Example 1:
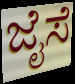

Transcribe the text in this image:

ಜೈಸೆ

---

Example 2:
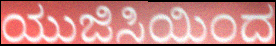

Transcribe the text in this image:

ಯುಜಿಸಿಯಿಂದ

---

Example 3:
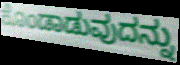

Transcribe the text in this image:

ಕೊಂಡಾಡುವುದನ್ನು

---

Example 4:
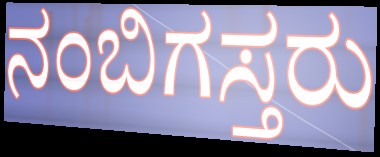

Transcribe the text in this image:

ನಂಬಿಗಸ್ತರು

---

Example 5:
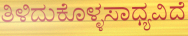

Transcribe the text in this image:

ತಿಳಿದುಕೊಳ್ಳಸಾಧ್ಯವಿದೆ